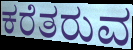
ಕರೆತರುವ